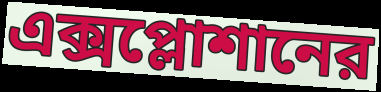
এক্সপ্লোশানের